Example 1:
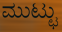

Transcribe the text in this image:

ಮುಟ್ಟು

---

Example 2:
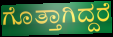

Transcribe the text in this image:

ಗೊತ್ತಾಗಿದ್ದರೆ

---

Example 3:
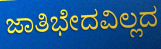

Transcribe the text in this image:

ಜಾತಿಭೇದವಿಲ್ಲದ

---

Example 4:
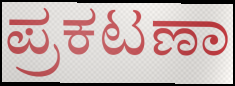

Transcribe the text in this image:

ಪ್ರಕಟಣಾ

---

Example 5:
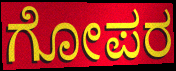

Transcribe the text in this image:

ಗೋಪರ